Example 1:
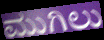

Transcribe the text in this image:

ಮುಗಿಲು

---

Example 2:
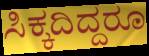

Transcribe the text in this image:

ಸಿಕ್ಕದಿದ್ದರೂ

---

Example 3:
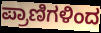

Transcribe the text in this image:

ಪ್ರಾಣಿಗಳಿಂದ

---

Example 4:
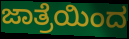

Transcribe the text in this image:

ಜಾತ್ರೆಯಿಂದ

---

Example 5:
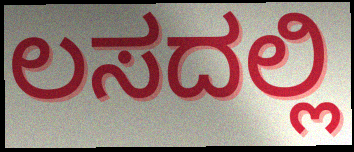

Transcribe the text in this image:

ಲಸದಲ್ಲಿ